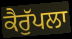
ਕੈਰੁੱਪਲਾ